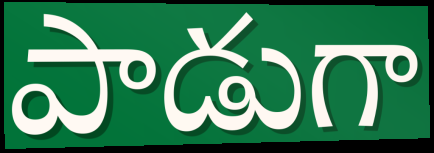
పాడుగా